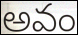
అవం